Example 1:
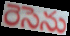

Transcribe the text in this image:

రెసెను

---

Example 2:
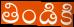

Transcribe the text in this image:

తిండికి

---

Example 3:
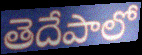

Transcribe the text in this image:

తెదేపాలో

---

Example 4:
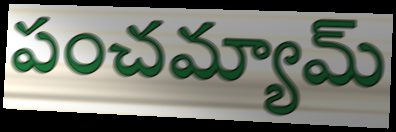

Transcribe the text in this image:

పంచమ్యామ్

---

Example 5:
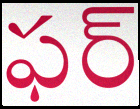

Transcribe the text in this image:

ఫర్